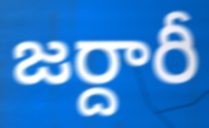
జర్దారీ